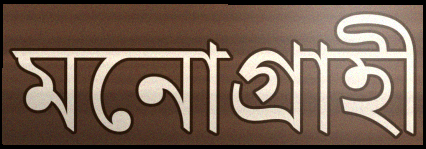
মনোগ্রাহী